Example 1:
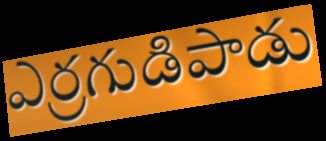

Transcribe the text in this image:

ఎర్రగుడిపాడు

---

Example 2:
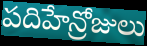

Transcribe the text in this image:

పదిహేన్రోజులు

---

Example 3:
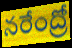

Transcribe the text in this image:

నరేంద్రో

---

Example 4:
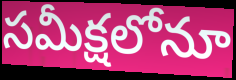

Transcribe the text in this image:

సమీక్షలోనూ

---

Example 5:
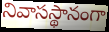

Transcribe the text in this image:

నివాసస్థానంగా